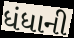
ધંધાની